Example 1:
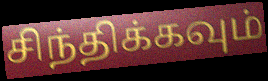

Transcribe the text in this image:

சிந்திக்கவும்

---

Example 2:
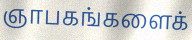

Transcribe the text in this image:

ஞாபகங்களைக்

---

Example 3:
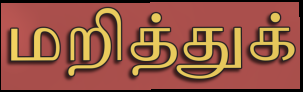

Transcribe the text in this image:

மறித்துக்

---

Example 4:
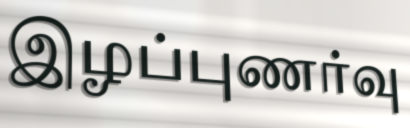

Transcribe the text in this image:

இழப்புணர்வு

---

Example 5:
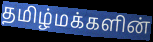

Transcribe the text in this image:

தமிழ்மக்களின்